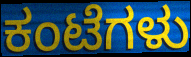
ಕಂಟೆಗಳು